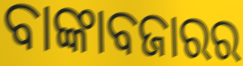
ବାଙ୍କାବଜାରର